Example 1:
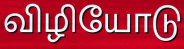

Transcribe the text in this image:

விழியோடு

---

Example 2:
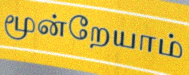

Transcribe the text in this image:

மூன்றேயாம்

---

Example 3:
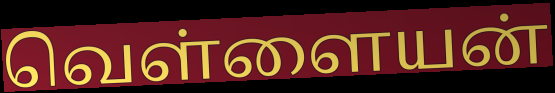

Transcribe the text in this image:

வெள்ளையன்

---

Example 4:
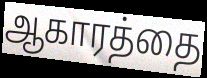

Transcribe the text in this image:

ஆகாரத்தை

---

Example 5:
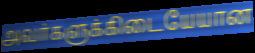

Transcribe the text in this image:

அவர்களுக்கிடையேயான